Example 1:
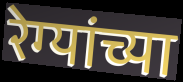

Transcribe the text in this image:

रेग्यांच्या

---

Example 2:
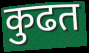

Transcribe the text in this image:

कुढत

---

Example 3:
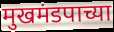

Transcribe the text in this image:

मुखमंडपाच्या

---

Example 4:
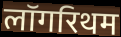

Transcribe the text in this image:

लॉगरिथम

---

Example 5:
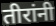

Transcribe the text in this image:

तीरांनी